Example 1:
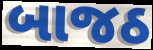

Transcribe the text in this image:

બાજઠ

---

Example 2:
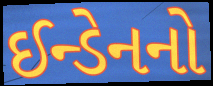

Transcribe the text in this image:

ઈન્ડેનનો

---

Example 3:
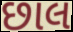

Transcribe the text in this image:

છાલ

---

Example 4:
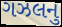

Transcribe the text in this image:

ગઝલનુ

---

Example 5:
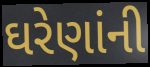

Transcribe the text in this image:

ઘરેણાંની